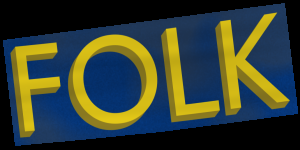
FOLK